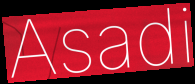
Asadi